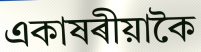
একাষৰীয়াকৈ